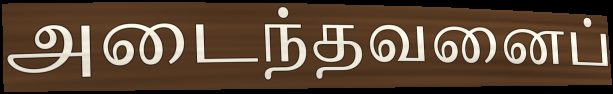
அடைந்தவனைப்